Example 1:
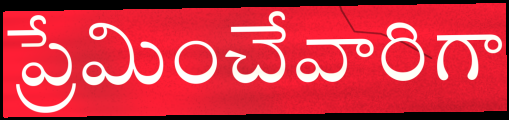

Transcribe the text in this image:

ప్రేమించేవారిగా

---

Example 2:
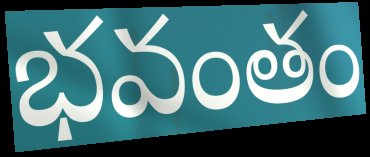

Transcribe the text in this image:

భవంతం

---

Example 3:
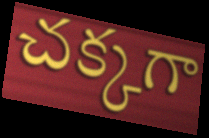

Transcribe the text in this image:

చక్కగా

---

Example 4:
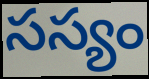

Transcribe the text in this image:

సస్యం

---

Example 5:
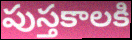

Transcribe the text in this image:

పుస్తకాలకి